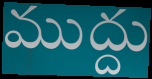
ముద్దు